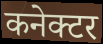
कनेक्टर